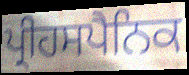
ਪ੍ਰੀਹਸਪੈਨਿਕ